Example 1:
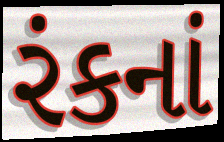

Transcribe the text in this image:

રંકનાં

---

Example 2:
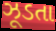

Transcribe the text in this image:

ઝૂડતા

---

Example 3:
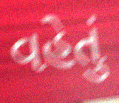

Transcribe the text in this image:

વહેતું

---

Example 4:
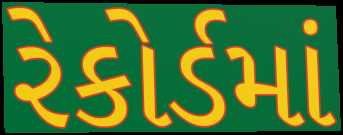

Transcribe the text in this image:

રેકોર્ડમાં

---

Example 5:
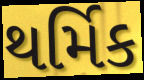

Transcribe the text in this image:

થર્મિક